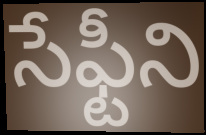
సేఫ్టీని